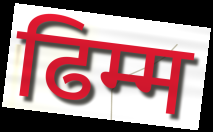
ढिम्म